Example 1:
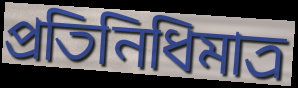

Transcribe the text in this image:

প্রতিনিধিমাত্র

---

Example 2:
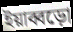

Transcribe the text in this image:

ইয়াব্বড়ো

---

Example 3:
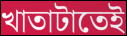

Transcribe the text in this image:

খাতাটাতেই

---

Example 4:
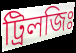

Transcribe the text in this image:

ট্রিলজিঃ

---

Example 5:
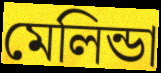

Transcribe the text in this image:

মেলিন্ডা